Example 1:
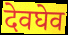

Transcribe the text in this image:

देवघेव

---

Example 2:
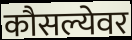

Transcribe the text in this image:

कौसल्येवर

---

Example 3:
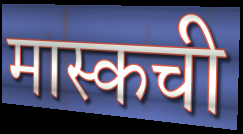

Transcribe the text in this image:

मास्कची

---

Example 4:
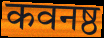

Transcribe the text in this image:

कवनष्ठ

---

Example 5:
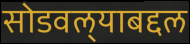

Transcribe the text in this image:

सोडवल्याबद्दल